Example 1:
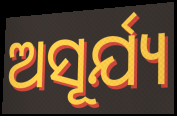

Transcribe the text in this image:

ଅସୂର୍ଯ୍ୟ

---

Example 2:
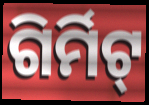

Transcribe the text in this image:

ଗିର୍ମିଟ୍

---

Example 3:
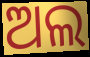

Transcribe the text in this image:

ଅଲ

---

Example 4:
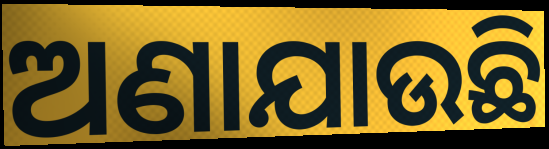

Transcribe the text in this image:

ଅଣାଯାଉଛି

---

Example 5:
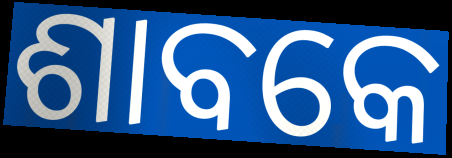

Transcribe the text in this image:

ଶାବକେ